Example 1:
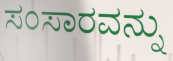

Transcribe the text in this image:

ಸಂಸಾರವನ್ನು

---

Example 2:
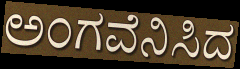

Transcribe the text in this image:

ಅಂಗವೆನಿಸಿದ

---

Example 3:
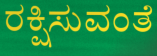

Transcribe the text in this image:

ರಕ್ಷಿಸುವಂತೆ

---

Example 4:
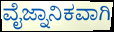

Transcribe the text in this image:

ವೈಜ್ನಾನಿಕವಾಗಿ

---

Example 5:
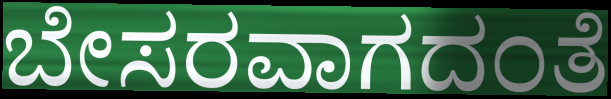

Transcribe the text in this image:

ಬೇಸರವಾಗದಂತೆ